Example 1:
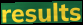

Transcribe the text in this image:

results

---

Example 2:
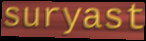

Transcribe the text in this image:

suryast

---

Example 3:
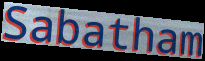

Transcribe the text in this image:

Sabatham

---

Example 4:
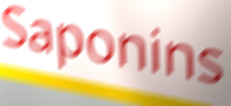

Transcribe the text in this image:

Saponins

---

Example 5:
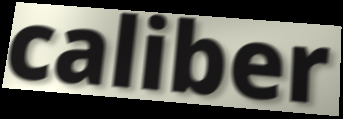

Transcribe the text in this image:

caliber